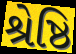
શ્રેષ્ઠિ